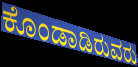
ಕೊಂಡಾಡಿರುವರು